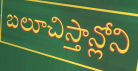
బలూచిస్తాన్లోని